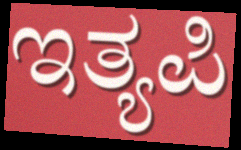
ಇತ್ಯಪಿ